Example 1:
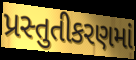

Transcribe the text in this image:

પ્રસ્તુતીકરણમાં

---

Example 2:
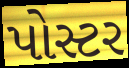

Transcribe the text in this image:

પોસ્ટર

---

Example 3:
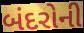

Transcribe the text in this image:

બંદરોની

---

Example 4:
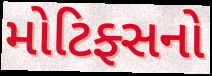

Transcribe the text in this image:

મોટિફ્સનો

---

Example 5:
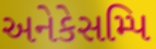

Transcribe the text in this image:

અનેકેસમ્પિ